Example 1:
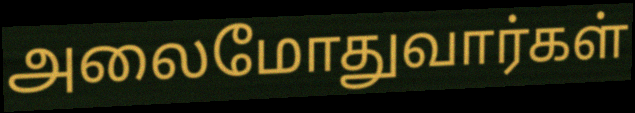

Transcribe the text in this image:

அலைமோதுவார்கள்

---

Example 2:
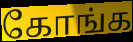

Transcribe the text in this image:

கோங்க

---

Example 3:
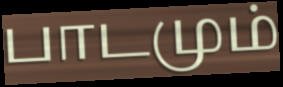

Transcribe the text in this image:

பாடமும்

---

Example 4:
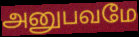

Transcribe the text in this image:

அனுபவமே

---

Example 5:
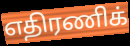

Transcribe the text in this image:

எதிரணிக்